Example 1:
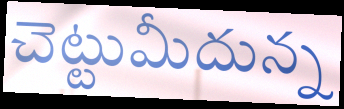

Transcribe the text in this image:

చెట్టుమీదున్న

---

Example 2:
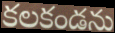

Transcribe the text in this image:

కలకండను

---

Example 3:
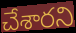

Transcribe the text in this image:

చేశారని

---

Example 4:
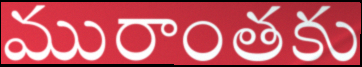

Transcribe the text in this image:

మురాంతకు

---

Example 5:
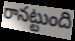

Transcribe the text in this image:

రానట్టుంది